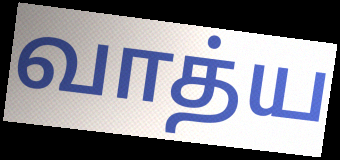
வாத்ய